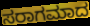
ಸರಾಗಮಾದ